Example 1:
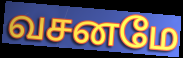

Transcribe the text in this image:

வசனமே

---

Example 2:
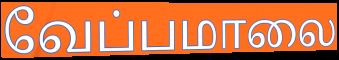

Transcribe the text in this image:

வேப்பமாலை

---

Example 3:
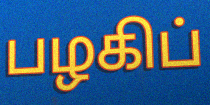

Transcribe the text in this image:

பழகிப்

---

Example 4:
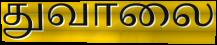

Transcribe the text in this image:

துவாலை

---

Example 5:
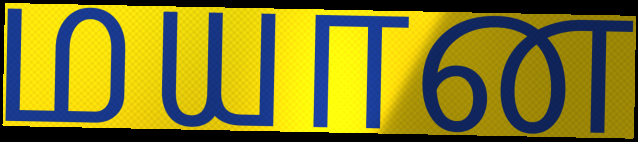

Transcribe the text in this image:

மயான